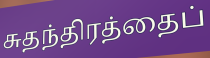
சுதந்திரத்தைப்